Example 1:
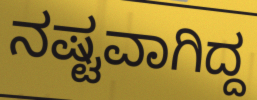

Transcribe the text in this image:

ನಷ್ಟವಾಗಿದ್ದ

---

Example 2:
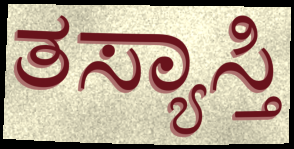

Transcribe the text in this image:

ತಸ್ಯಾಸ್ತಿ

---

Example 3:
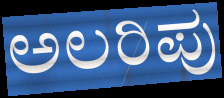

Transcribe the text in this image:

ಅಲರಿಪು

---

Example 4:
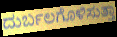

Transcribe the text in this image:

ದುರ್ಬಲಗೊಳಿಸುತ್ತಾ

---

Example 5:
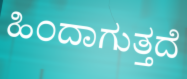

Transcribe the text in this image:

ಹಿಂದಾಗುತ್ತದೆ